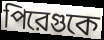
পিরেগুকে